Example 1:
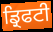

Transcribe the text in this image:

ਡ੍ਰਿਫਟੀ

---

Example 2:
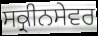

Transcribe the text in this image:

ਸਕ੍ਰੀਨਸੇਵਰ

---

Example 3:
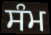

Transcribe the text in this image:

ਸੰਮ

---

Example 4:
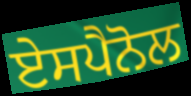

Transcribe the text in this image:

ਏਸਪੈਨੋਲ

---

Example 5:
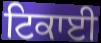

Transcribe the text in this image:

ਟਿਕਾਈ